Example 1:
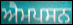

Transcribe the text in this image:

ਐਮਪਸਨ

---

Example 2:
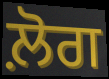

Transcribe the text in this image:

ਲ਼ੋਗ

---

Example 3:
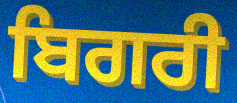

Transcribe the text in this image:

ਬਿਗਰੀ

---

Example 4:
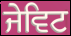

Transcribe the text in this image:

ਜੇਵਿਟ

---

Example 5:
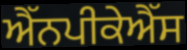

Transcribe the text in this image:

ਐੱਨਪੀਕੇਐੱਸ